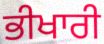
ਭੀਖਾਰੀ